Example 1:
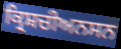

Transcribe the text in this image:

ਕ੍ਰਿਸ਼ਚੀਅਨਸਨ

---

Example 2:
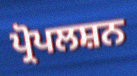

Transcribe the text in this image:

ਪ੍ਰੋਪਲਸ਼ਨ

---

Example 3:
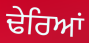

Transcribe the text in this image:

ਢੇਰਿਆਂ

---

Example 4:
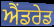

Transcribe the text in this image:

ਐਂਡਰੇਡ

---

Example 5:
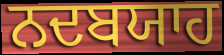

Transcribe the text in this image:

ਨਦਬਯਾਹ